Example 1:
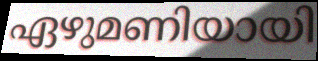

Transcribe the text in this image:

ഏഴുമണിയായി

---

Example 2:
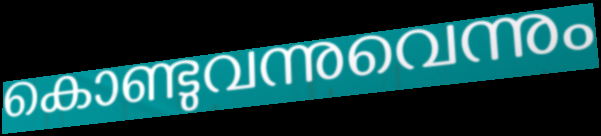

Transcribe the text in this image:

കൊണ്ടുവന്നുവെന്നും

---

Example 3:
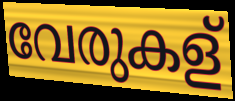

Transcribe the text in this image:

വേരുകള്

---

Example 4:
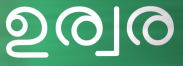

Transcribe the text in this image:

ഉര്വര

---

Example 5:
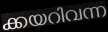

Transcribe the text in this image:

ക്കയറിവന്ന